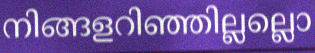
നിങ്ങളറിഞ്ഞില്ലല്ലൊ